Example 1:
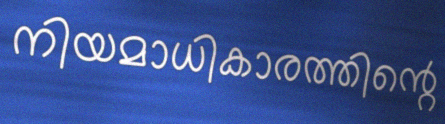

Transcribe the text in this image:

നിയമാധികാരത്തിന്റെ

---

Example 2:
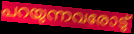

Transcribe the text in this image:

പറയുന്നവരോടു്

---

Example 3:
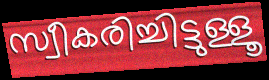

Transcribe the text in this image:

സ്വീകരിച്ചിട്ടുള്ളൂ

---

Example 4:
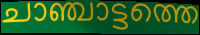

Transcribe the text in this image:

ചാഞ്ചാട്ടത്തെ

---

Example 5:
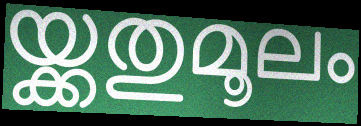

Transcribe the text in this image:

യ്ക്കതുമൂലം